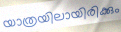
യാത്രയിലായിരിക്കും